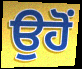
ਉਹੋਂ